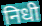
निधी